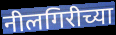
नीलगिरीच्या